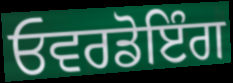
ਓਵਰਡੋਇੰਗ